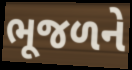
ભૂજળને